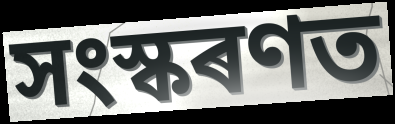
সংস্কৰণত